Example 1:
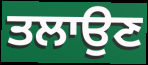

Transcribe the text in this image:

ਤਲਾਉਣ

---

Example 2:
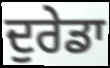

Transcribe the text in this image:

ਦੁਰੇਡਾ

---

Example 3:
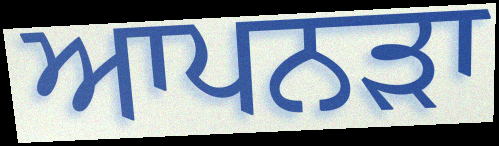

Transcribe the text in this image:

ਆਪਨੜਾ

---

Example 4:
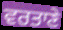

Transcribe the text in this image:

ਵਰਤਾਣੇ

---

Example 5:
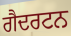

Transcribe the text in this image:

ਗੈਦਰਟਨ